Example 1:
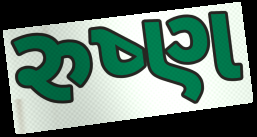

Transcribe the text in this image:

રુષ્ણ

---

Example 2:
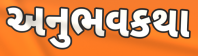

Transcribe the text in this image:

અનુભવકથા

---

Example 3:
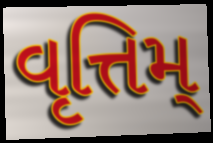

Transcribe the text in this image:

વૃત્તિમ્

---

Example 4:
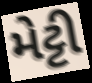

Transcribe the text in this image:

મેટ્ટી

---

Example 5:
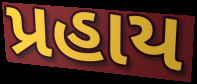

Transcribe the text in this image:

પ્રહાય